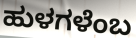
ಹುಳಗಳೆಂಬ